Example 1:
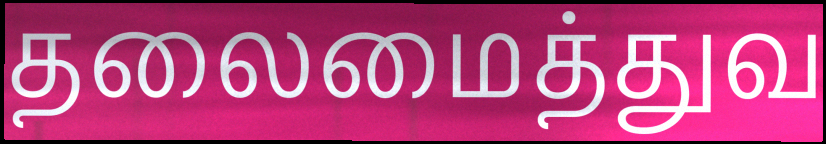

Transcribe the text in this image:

தலைமைத்துவ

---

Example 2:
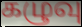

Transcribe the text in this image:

கழுவு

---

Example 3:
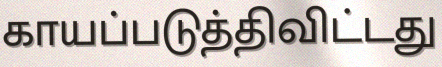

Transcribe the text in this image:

காயப்படுத்திவிட்டது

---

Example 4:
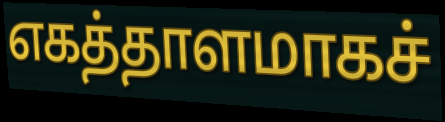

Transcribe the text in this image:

எகத்தாளமாகச்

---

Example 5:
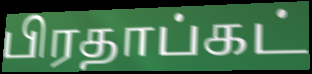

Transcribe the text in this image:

பிரதாப்கட்